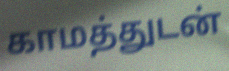
காமத்துடன்